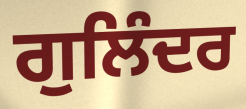
ਗੁਲਿੰਦਰ